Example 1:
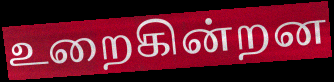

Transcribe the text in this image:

உறைகின்றன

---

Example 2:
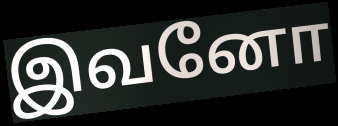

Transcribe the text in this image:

இவனோ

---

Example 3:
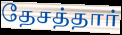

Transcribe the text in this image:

தேசத்தார்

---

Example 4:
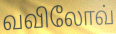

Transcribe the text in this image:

வவிலோவ்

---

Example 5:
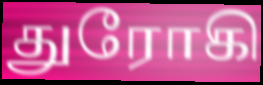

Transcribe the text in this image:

துரோகி